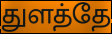
துளத்தே